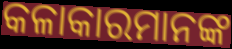
କଳାକାରମାନଙ୍କ